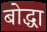
बोद्धा